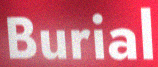
Burial